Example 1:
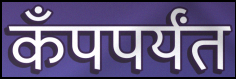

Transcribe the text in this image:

कँपपर्यंत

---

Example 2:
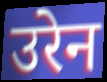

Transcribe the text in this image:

उरेन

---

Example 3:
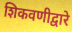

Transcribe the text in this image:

शिकवणीद्वारे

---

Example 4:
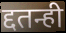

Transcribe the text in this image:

द्दतन्ही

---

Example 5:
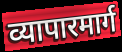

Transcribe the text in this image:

व्यापारमार्ग